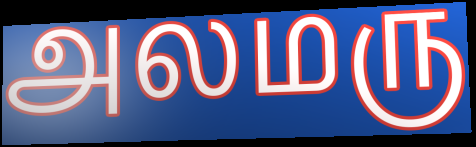
அலமரு